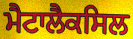
ਮੈਟਾਲੈਕਸਿਲ